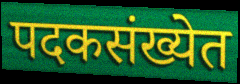
पदकसंख्येत